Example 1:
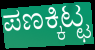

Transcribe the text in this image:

ಪಣಕ್ಕಿಟ್ಟ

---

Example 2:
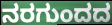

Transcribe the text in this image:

ನರಗುಂದದ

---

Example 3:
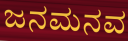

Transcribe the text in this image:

ಜನಮನವ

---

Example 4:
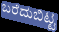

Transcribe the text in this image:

ಬರೆದುಬಿಟ್ಟ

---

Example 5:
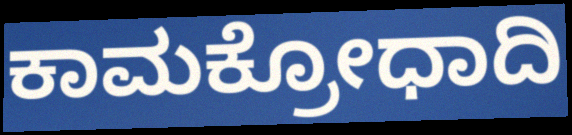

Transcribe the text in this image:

ಕಾಮಕ್ರೋಧಾದಿ